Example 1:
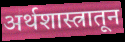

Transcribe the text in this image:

अर्थशास्त्रातून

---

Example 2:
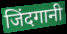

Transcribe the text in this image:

जिंदगानी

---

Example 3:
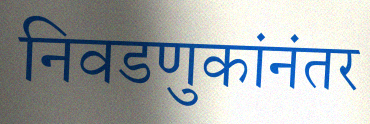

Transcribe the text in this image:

निवडणुकांनंतर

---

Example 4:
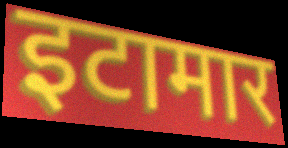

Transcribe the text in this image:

इटामार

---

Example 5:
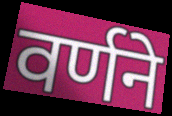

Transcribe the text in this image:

वर्णने